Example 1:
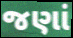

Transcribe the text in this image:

જણાં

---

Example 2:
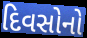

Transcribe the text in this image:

દિવસોનો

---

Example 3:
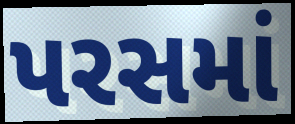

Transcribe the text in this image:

પરસમાં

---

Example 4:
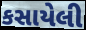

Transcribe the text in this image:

કસાયેલી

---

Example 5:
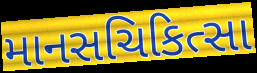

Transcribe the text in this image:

માનસચિકિત્સા